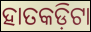
ହାତକଡ଼ିଟା